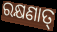
ରକ୍ଷଣାତ୍